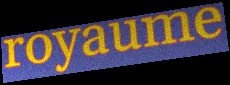
royaume